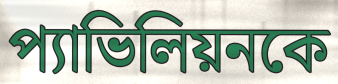
প্যাভিলিয়নকে